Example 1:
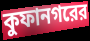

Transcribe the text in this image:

কুফানগরের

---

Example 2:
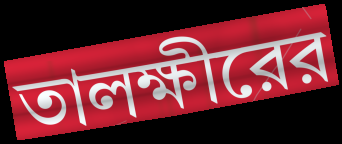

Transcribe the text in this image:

তালক্ষীরের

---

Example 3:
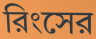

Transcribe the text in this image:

রিংসের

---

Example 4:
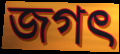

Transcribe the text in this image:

জগৎ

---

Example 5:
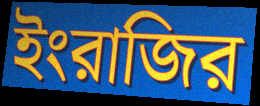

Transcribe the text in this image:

ইংরাজির